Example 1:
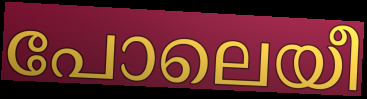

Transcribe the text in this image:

പോലെയീ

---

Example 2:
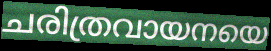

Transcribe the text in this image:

ചരിത്രവായനയെ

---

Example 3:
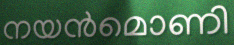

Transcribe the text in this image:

നയൻമൊണി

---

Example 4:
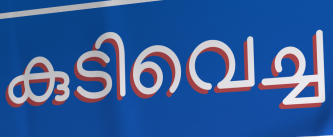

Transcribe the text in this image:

കുടിവെച്ച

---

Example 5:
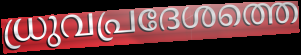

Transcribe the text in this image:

ധ്രുവപ്രദേശത്തെ